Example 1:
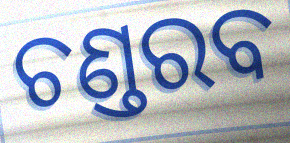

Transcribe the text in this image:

ଚଣ୍ଡରବ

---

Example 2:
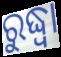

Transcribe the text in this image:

ରୁଦ୍ଧ୍ୱା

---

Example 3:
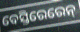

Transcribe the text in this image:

ବେସ୍ତିରେରେନ୍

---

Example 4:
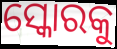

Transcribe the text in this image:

ସ୍କୋରକୁ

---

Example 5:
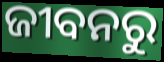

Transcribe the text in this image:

ଜୀବନରୁ